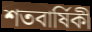
শতবাৰ্ষিকী